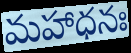
మహాధనః